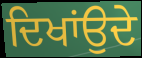
ਦਿਖਾਂਉਦੇ